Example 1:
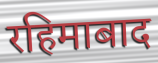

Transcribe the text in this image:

रहिमाबाद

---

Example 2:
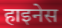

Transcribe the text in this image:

हाइनेस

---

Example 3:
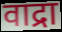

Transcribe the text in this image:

वाद्रा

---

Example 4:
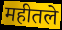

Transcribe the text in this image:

महीतले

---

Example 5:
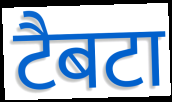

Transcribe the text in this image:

टैबटा